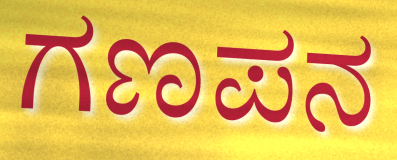
ಗಣಪನ